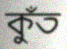
কুঁত